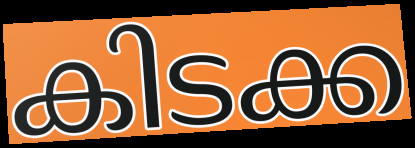
കിടക്ക